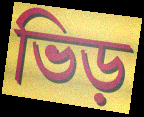
ভিড়